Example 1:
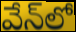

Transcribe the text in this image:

వేన్‌లో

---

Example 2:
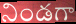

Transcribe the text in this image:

నిండగా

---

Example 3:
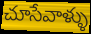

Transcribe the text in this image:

చూసేవాళ్ళు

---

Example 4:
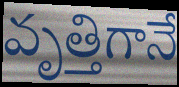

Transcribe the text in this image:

వృత్తిగానే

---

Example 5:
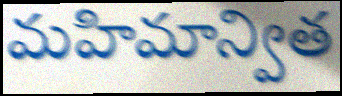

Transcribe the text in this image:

మహిమాన్విత